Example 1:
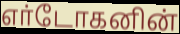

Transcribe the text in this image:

எர்டோகனின்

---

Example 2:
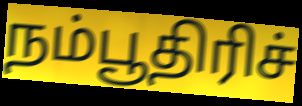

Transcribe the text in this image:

நம்பூதிரிச்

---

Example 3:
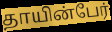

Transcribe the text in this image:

தாயின்பேர்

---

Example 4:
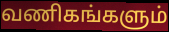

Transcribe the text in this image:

வணிகங்களும்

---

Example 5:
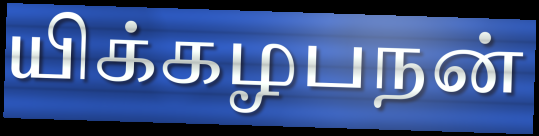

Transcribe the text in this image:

யிக்கழபநன்